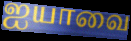
ஐயாவை